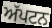
ਅੱਪਟਨ